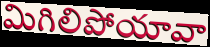
మిగిలిపోయావా